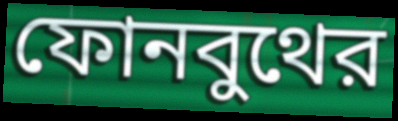
ফোনবুথের